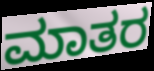
ಮಾತರ